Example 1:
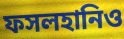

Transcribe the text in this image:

ফসলহানিও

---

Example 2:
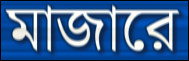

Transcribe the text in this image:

মাজারে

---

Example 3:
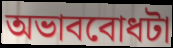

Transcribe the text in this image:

অভাববোধটা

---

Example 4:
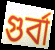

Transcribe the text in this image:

গুর্বা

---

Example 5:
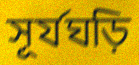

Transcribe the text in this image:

সূর্যঘড়ি